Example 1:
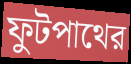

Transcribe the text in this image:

ফুটপাথের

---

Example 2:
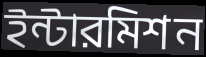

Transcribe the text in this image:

ইন্টারমিশন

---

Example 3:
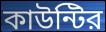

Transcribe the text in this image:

কাউন্টির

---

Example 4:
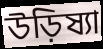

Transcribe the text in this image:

উড়িষ্যা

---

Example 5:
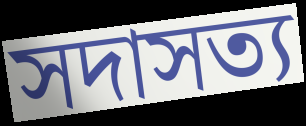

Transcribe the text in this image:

সদাসত্য